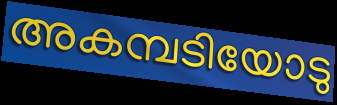
അകമ്പടിയോടു